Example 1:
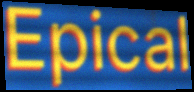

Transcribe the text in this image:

Epical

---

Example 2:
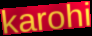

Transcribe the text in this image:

karohi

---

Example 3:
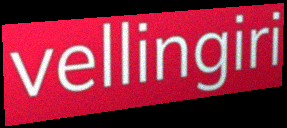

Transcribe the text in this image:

vellingiri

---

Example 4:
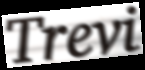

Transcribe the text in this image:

Trevi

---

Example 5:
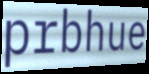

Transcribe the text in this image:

prbhue